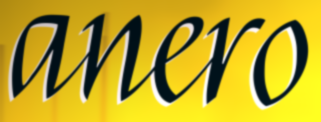
anero